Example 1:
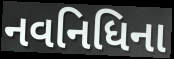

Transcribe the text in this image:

નવનિધિના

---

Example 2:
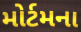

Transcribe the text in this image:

મોર્ટમના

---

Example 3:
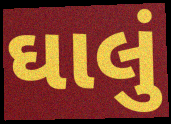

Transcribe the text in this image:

ઘાલું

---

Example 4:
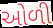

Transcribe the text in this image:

ઓળી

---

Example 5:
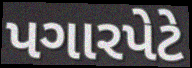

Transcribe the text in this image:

પગારપેટે